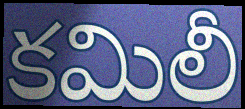
కమిలీ